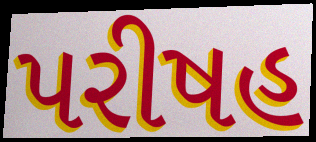
પરીષહ